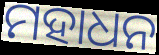
ମହାଧନ